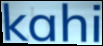
kahi